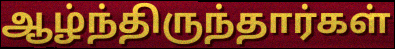
ஆழ்ந்திருந்தார்கள்